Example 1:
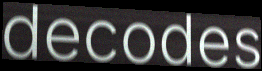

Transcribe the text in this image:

decodes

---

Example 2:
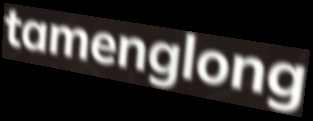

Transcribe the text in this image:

tamenglong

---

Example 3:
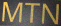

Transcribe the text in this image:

MTN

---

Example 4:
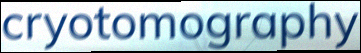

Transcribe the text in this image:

cryotomography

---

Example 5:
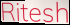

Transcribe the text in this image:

Ritesh